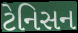
ટેનિસન